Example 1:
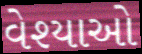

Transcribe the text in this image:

વેશ્યાઓ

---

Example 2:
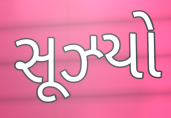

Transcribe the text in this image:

સૂઝ્યો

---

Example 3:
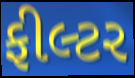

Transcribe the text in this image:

ફીલ્ટર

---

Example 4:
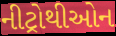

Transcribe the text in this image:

નીટ્રોથીઓન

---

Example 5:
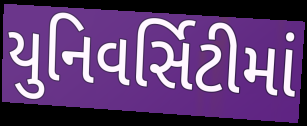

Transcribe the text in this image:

યુનિવર્સિટીમાં